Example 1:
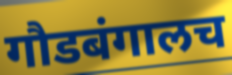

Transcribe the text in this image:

गौडबंगालच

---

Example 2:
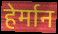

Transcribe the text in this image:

हेर्मान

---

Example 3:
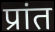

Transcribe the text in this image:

प्रांत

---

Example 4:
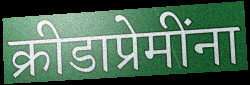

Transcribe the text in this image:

क्रीडाप्रेमींना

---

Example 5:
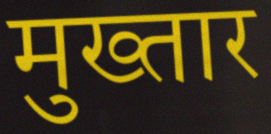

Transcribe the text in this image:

मुख्तार